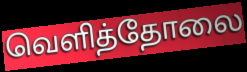
வெளித்தோலை